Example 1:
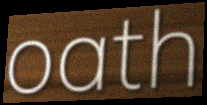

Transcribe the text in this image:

oath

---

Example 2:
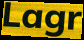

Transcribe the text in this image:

Lagr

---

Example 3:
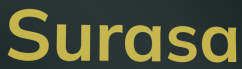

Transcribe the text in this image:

Surasa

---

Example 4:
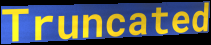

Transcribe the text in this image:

Truncated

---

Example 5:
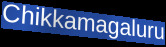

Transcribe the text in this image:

Chikkamagaluru